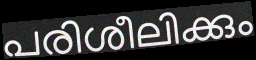
പരിശീലിക്കും